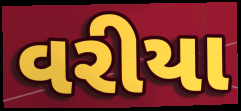
વરીયા